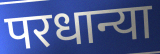
परधान्या